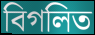
বিগলিত